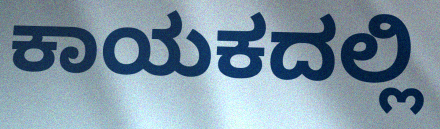
ಕಾಯಕದಲ್ಲಿ